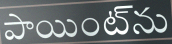
పాయింట్‌ను